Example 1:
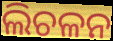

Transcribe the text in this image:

ଲିଚଳନ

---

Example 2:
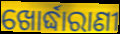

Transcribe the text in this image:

ଖୋର୍ଦ୍ଧାରାଣୀ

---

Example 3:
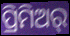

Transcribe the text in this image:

ପ୍ରିମିଅର୍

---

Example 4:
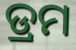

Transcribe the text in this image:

ଡ୍ରମ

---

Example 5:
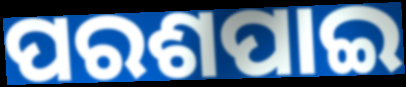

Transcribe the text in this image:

ପରଶପାଇ